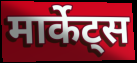
मार्केट्स